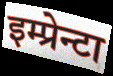
इम्प्रेन्टा